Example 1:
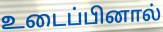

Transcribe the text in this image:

உடைப்பினால்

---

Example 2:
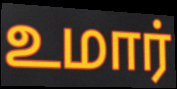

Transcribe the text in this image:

உமார்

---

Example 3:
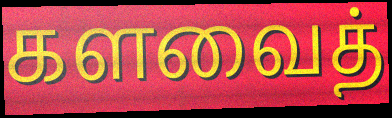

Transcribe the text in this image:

களவைத்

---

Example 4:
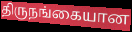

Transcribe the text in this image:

திருநங்கையான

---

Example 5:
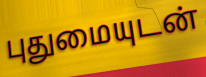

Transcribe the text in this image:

புதுமையுடன்